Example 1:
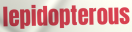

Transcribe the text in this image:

lepidopterous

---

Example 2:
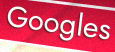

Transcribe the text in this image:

Googles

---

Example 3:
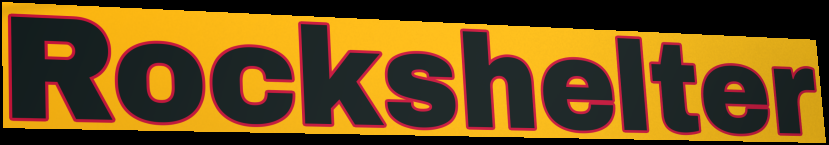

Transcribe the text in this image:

Rockshelter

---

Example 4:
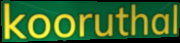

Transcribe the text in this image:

kooruthal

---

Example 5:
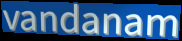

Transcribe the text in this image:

vandanam